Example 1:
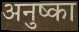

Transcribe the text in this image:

अनुष्का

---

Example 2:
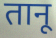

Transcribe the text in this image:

तानू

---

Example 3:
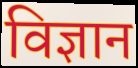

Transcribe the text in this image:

विज्ञान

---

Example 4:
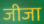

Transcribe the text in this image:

जीजा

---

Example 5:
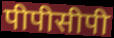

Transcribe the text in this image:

पीपीसीपी